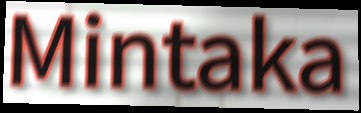
Mintaka